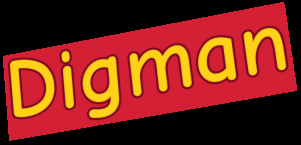
Digman